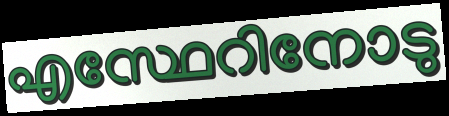
എസ്ഥേറിനോടു